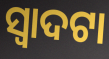
ସ୍ଵାଦଟା